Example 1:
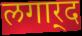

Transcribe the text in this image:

लगार्द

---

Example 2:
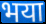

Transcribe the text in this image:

भया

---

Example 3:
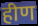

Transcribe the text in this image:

हीण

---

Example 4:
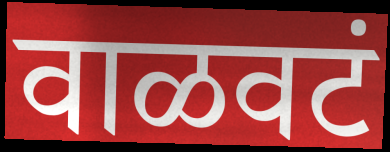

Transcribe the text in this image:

वाळवटं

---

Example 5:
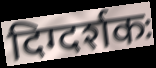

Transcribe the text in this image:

दिग्दर्शकः